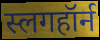
स्लगहॉर्न